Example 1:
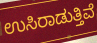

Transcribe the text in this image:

ಉಸಿರಾಡುತ್ತಿವೆ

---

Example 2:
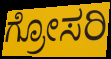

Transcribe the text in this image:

ಗ್ರೋಸರಿ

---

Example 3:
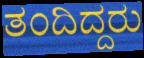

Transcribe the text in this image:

ತಂದಿದ್ದರು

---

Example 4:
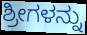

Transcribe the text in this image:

ಶ್ರೀಗಳನ್ನು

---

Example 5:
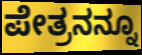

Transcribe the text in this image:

ಪೇತ್ರನನ್ನೂ